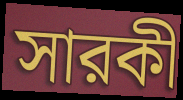
সারকী